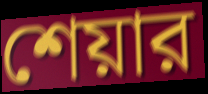
শেয়ার